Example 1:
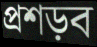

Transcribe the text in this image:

প্রশড়ব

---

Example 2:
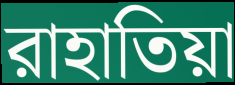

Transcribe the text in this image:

রাহাতিয়া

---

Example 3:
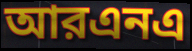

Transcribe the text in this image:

আরএনএ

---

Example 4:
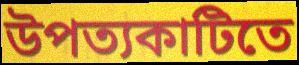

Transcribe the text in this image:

উপত্যকাটিতে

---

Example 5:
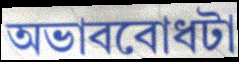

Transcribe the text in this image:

অভাববোধটা